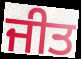
ਜੀਤ